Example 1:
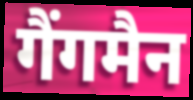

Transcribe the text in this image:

गैंगमैन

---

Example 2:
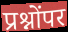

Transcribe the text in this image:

प्रश्नोंपर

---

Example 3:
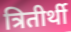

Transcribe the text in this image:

त्रितीर्थी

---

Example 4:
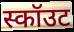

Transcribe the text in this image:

स्कॉउट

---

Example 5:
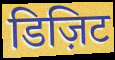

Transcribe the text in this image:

डिज़िट